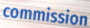
commission